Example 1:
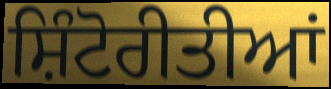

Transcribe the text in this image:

ਸ਼ਿੰਟੋਰੀਤੀਆਂ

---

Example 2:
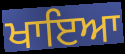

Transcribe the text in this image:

ਖਾਇਆ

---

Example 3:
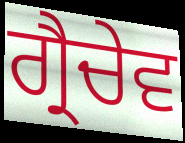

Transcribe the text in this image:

ਗ੍ਰੈਚੇਵ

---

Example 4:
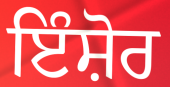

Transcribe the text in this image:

ਇੰਸ਼ੋਰ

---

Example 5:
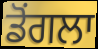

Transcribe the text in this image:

ਡੋਂਗਲਾ